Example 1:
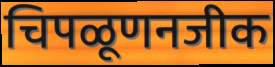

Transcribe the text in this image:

चिपळूणनजीक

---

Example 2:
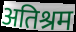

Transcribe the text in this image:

अतिश्रम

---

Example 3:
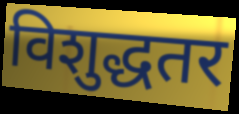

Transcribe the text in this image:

विशुद्धतर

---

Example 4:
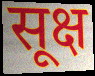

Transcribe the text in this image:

सूक्ष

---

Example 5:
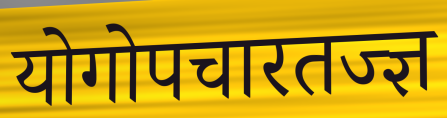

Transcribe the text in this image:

योगोपचारतज्ज्ञ